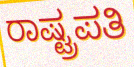
ರಾಷ್ಟ್ರಪತಿ